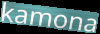
kamona